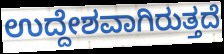
ಉದ್ದೇಶವಾಗಿರುತ್ತದೆ